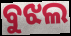
ବୁଝଲ